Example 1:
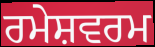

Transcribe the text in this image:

ਰਮੇਸ਼ਵਰਮ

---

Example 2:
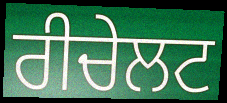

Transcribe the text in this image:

ਰੀਚੇਲਟ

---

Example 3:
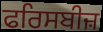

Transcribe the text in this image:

ਫਰਿਸਬੀਜ਼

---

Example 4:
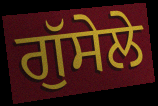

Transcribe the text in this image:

ਗੁੱਸੇਲੇ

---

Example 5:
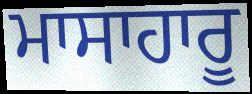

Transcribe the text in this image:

ਮਾਸਾਹਾਰੂ